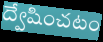
ద్వేషించటం